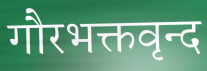
गौरभक्तवृन्द